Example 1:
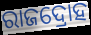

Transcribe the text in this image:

ରାଜଦ୍ରୋହ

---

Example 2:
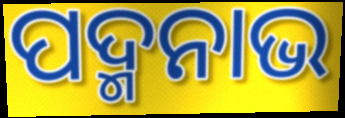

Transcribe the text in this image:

ପଦ୍ମନାଭ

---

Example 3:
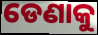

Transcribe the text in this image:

ଡେଣାକୁ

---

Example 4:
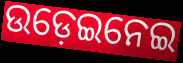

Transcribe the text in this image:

ଉଡ଼େଇନେଇ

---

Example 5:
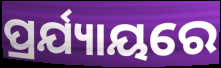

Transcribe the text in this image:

ପ୍ରର୍ଯ୍ୟାୟରେ